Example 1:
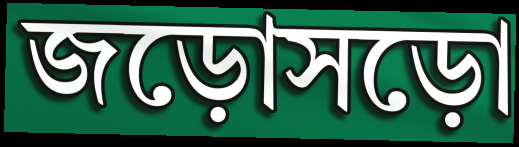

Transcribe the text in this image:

জড়োসড়ো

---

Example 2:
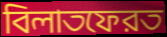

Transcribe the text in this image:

বিলাতফেরত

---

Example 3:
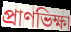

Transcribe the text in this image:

প্রাণভিক্ষা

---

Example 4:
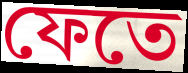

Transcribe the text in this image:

ফেতে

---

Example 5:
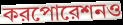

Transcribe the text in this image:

করপোরেশনও